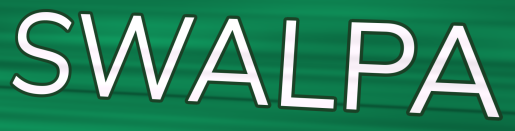
SWALPA